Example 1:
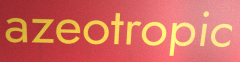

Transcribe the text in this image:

azeotropic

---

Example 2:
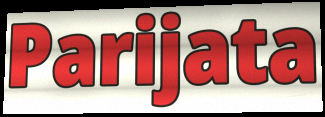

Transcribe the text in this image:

Parijata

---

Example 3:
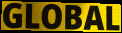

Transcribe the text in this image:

GLOBAL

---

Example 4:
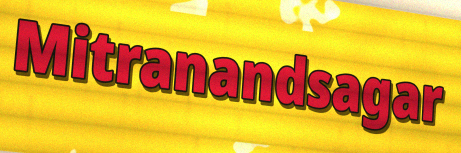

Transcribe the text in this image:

Mitranandsagar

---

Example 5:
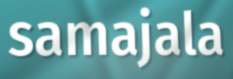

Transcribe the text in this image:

samajala